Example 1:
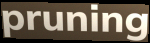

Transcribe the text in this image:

pruning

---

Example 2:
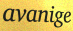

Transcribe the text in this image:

avanige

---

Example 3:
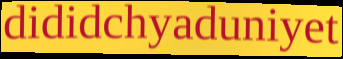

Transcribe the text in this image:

dididchyaduniyet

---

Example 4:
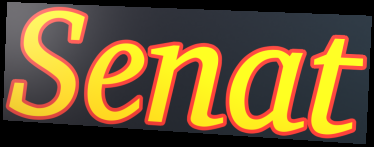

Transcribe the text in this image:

Senat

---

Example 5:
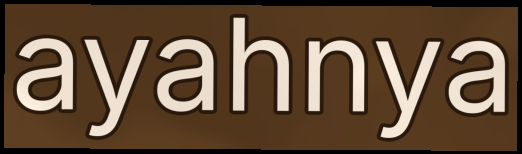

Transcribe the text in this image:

ayahnya